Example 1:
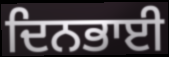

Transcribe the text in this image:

ਦਿਨਭਾਈ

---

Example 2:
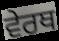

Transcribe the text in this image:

ਵੇਰਥ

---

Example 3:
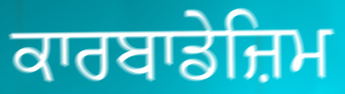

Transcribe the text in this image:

ਕਾਰਬਾਡੇਜ਼ਿਮ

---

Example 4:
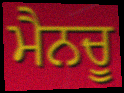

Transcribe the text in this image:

ਮੈਨਚੂ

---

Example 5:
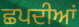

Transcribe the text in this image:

ਛਪਦੀਆਂ